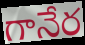
గానేర